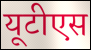
यूटीएस